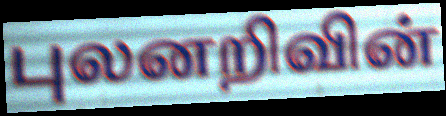
புலனறிவின்